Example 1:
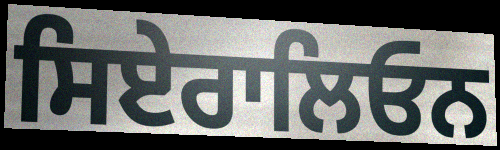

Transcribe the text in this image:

ਸਿਏਰਾਲਿਓਨ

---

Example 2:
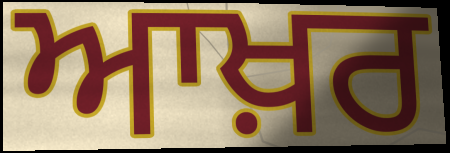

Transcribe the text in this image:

ਆਖ਼ਰ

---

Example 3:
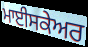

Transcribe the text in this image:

ਮਾਈਸਕੇਅਰ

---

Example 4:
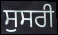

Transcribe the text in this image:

ਸੁਸਰੀ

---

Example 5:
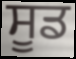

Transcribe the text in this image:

ਸੂਡ